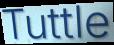
Tuttle